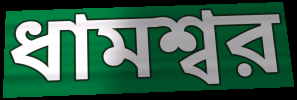
ধামশ্বর